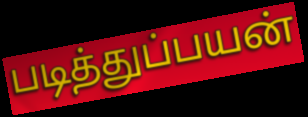
படித்துப்பயன்